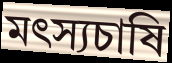
মৎস্যচাষি